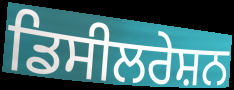
ਡਿਸੀਲਰੇਸ਼ਨ